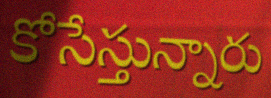
కోసేస్తున్నారు